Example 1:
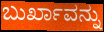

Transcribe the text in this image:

ಬುರ್ಖಾವನ್ನು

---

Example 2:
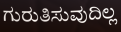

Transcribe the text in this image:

ಗುರುತಿಸುವುದಿಲ್ಲ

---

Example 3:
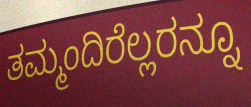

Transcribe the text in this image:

ತಮ್ಮಂದಿರೆಲ್ಲರನ್ನೂ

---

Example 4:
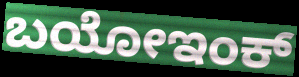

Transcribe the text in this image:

ಬಯೋಇಂಕ್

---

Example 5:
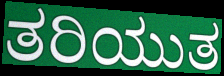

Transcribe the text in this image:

ತರಿಯುತ